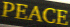
PEACE